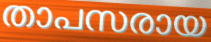
താപസരായ